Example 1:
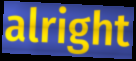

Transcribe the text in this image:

alright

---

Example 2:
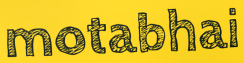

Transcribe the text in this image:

motabhai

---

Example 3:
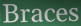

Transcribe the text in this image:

Braces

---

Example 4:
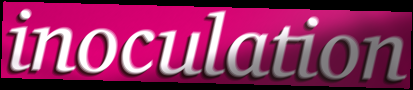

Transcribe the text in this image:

inoculation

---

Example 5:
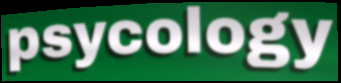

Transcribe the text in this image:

psycology